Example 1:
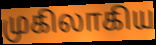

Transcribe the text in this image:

முகிலாகிய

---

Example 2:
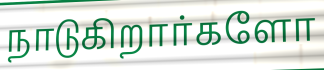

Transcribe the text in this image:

நாடுகிறார்களோ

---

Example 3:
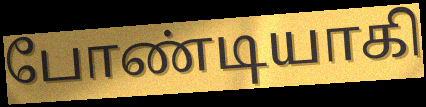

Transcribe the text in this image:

போண்டியாகி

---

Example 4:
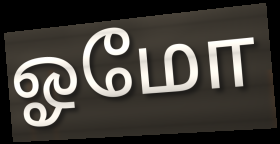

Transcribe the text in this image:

ஓமோ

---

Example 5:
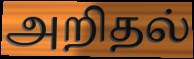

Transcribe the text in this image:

அறிதல்